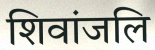
शिवांजलि